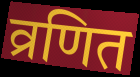
व्रणित